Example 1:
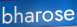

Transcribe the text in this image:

bharose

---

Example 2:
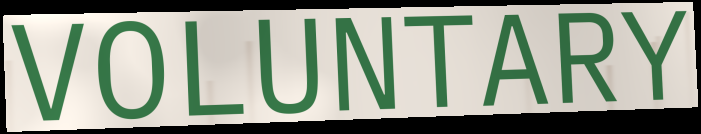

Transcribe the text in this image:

VOLUNTARY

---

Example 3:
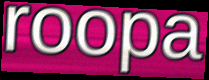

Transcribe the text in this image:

roopa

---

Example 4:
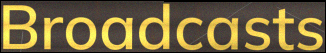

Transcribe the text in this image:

Broadcasts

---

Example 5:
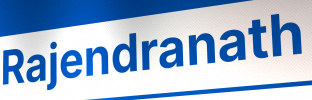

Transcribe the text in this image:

Rajendranath